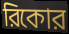
রিকোর